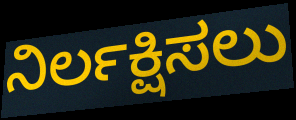
ನಿರ್ಲಕ್ಷಿಸಲು